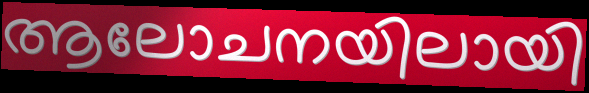
ആലോചനയിലായി